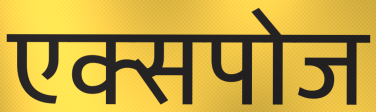
एक्सपोज